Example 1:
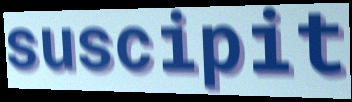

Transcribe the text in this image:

suscipit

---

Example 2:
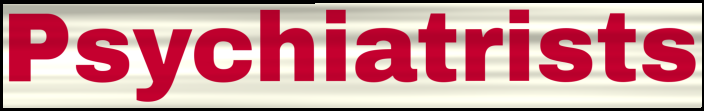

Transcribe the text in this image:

Psychiatrists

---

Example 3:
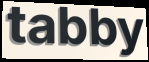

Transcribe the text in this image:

tabby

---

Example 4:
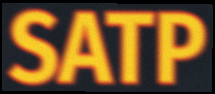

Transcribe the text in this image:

SATP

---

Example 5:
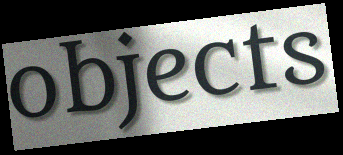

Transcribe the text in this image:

objects